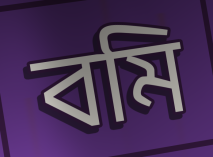
বমি